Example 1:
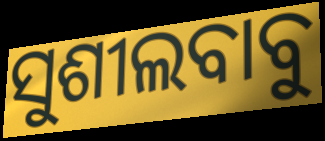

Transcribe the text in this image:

ସୁଶୀଲବାବୁ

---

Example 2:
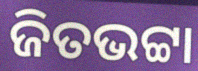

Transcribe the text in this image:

ଜିତଭଟ୍ଟା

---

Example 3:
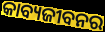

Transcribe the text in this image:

କାବ୍ୟଜୀବନର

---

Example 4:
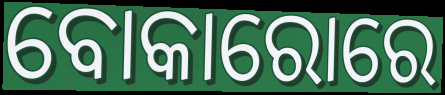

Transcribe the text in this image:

ବୋକାରୋରେ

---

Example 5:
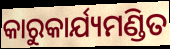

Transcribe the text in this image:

କାରୁକାର୍ଯ୍ୟମଣ୍ଡିତ